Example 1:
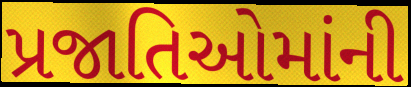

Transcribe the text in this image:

પ્રજાતિઓમાંની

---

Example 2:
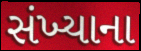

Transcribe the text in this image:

સંખ્યાના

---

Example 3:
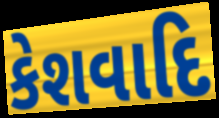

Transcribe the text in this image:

કેશવાદિ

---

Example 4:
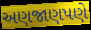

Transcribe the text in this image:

અણજાણપણે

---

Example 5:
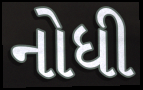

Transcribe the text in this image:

નોધી